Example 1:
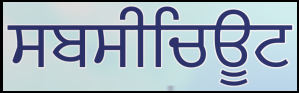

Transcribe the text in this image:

ਸਬਸੀਚਿਊਟ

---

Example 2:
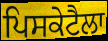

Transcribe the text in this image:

ਪਿਸਕੇਟੈਲਾ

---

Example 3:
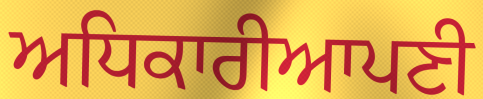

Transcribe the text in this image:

ਅਧਿਕਾਰੀਆਪਣੀ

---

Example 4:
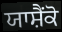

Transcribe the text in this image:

ਯਾਸ਼ੈਂਕੋ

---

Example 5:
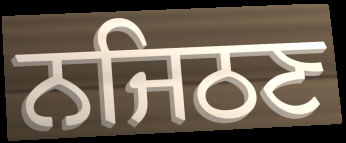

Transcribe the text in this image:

ਨਜਿਠਣ